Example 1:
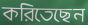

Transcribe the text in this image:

করিতেছেন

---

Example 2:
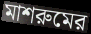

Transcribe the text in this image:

মাশরুমের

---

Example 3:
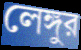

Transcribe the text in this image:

লেঙ্গুর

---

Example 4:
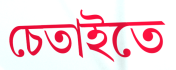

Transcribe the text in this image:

চেতাইতে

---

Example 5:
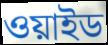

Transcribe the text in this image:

ওয়াইড